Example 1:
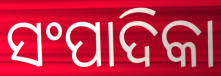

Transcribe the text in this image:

ସଂପାଦିକା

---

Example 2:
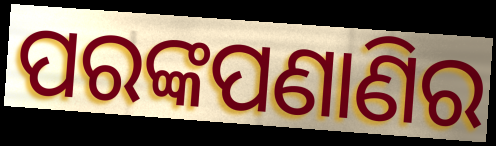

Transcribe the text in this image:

ପରଙ୍କପଣାଣିର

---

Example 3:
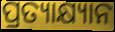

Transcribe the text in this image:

ପ୍ରତ୍ୟାକ୍ଷ୍ୟାନ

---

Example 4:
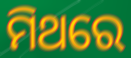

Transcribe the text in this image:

ମିଥରେ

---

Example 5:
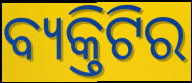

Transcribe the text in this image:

ବ୍ୟକ୍ତିଟିର